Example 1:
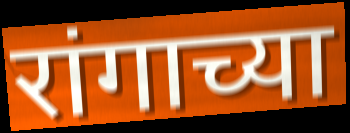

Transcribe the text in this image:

रांगाच्या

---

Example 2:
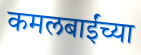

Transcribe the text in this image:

कमलबाईंच्या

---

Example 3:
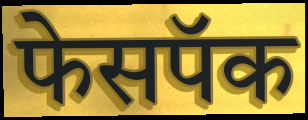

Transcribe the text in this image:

फेसपॅक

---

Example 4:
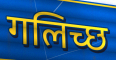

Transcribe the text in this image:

गलिच्छ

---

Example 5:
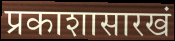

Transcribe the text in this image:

प्रकाशासारखं